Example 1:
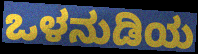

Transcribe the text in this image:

ಒಳನುಡಿಯ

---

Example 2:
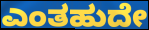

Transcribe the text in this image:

ಎಂತಹುದೇ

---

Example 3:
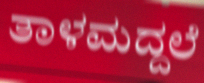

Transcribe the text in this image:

ತಾಳಮದ್ದಲೆ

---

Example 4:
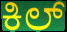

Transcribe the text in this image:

ಕಿಲ್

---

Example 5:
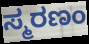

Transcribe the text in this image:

ಸ್ಮರಣಂ